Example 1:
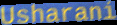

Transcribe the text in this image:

Usharani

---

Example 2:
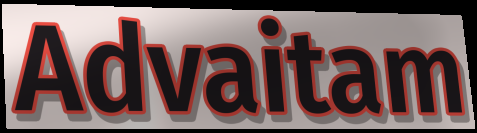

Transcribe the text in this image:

Advaitam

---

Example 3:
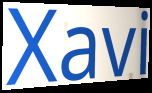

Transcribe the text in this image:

Xavi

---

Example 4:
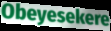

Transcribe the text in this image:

Obeyesekere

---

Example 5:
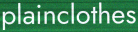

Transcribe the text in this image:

plainclothes